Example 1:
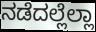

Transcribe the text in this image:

ನಡೆದಲ್ಲೆಲ್ಲಾ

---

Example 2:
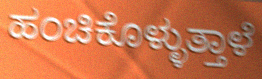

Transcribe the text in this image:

ಹಂಚಿಕೊಳ್ಳುತ್ತಾಳೆ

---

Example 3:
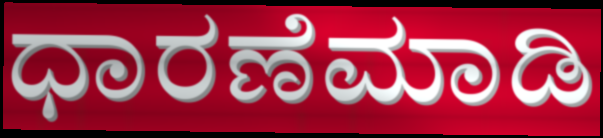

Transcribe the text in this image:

ಧಾರಣೆಮಾಡಿ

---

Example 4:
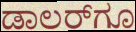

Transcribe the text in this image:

ಡಾಲರ್‌ಗೂ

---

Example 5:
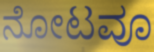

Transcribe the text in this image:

ನೋಟವೂ